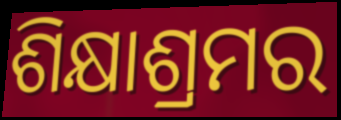
ଶିକ୍ଷାଶ୍ରମର